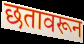
छतावरून